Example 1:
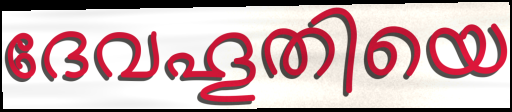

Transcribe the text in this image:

ദേവഹൂതിയെ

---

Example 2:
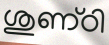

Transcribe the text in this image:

ശുണ്‌ഠി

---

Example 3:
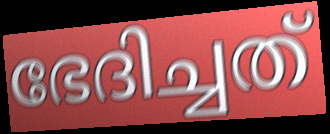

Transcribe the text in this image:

ഭേദിച്ചത്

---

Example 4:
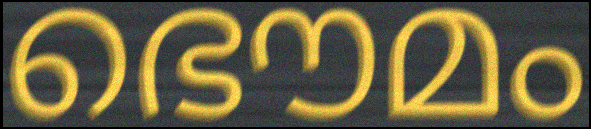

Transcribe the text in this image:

ഭൌമം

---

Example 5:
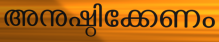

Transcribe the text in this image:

അനുഷ്ഠിക്കേണം